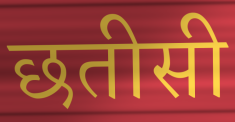
छतीसी